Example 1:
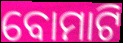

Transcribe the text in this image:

ବୋମାଟି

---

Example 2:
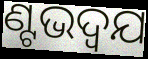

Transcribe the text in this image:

ଣ୍ଟଭଦ୍ଵଯ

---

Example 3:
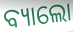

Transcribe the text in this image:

ବ୍ୟାଲୋ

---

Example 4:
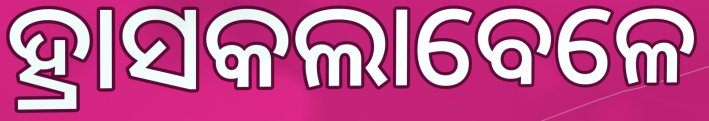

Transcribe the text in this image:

ହ୍ରାସକଲାବେଳେ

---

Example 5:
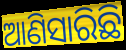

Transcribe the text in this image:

ଆଣିସାରିଛି